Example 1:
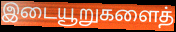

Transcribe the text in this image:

இடையூறுகளைத்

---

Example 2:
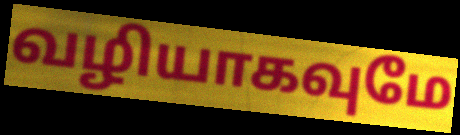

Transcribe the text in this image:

வழியாகவுமே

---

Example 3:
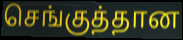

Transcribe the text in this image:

செங்குத்தான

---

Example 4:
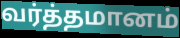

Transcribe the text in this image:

வர்த்தமானம்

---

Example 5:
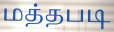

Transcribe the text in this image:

மத்தபடி